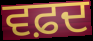
ਵਫ਼ਦ